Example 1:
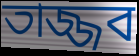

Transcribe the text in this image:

তাজ্জব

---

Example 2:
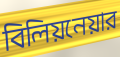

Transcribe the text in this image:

বিলিয়নেয়ার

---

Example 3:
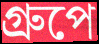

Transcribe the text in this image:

গ্রুপে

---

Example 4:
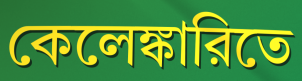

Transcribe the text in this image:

কেলেঙ্কারিতে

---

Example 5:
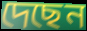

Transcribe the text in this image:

দেছেন